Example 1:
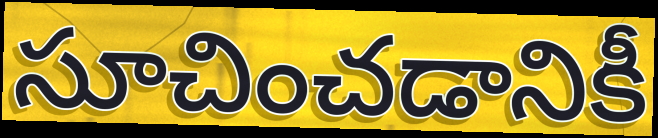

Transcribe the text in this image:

సూచించడానికీ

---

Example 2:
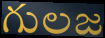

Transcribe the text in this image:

గులజ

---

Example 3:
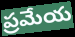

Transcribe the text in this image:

ప్రమేయ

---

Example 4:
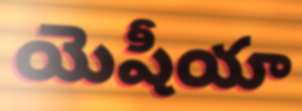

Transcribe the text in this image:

యెషీయా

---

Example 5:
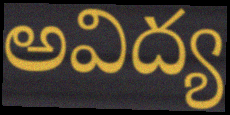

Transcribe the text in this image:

అవిద్య